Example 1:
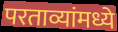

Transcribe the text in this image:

परताव्यांमध्ये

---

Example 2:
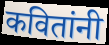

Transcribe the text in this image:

कवितांनी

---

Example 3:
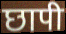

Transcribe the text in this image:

छापी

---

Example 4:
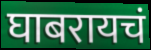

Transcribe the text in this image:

घाबरायचं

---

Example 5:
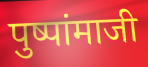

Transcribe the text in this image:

पुष्पांमाजी